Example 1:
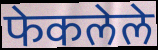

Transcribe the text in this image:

फेकलेले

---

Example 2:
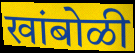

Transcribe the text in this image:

खांबोळी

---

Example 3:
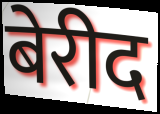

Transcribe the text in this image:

बेरीद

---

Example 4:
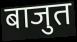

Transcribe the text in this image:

बाजुत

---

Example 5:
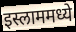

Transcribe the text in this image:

इस्लाममध्ये